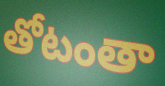
తోటంతా